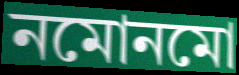
নমোনমো